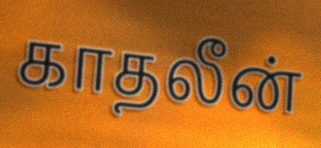
காதலீன்